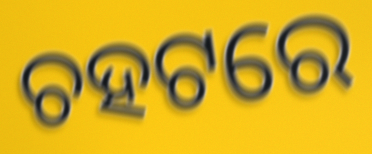
ଚହଟରେ